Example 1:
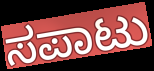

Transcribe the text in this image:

ಸಪಾಟು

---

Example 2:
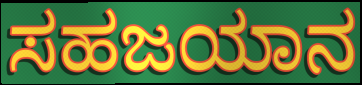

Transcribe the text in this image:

ಸಹಜಯಾನ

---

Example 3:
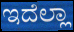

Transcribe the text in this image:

ಇದೆಲ್ಲಾ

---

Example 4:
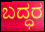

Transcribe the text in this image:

ಬದ್ಧರ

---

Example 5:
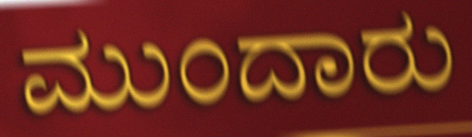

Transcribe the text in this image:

ಮುಂದಾರು